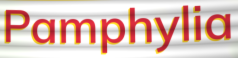
Pamphylia